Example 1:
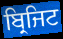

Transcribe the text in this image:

ਬ੍ਰਿਜਿਟ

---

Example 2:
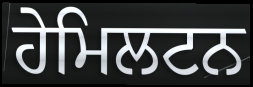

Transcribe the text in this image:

ਹੇਮਿਲਟਨ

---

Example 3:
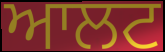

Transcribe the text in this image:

ਆਲਟ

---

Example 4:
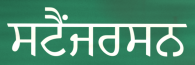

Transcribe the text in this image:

ਸਟੈਂਜਰਸਨ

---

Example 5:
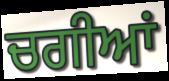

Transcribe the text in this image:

ਚਗੀਆਂ